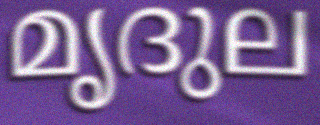
മൃദുല